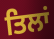
ਤਿਲਾਂ